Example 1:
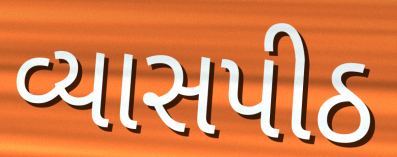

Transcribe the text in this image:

વ્યાસપીઠ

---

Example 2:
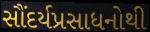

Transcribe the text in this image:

સૌંદર્યપ્રસાધનોથી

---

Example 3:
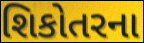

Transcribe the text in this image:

શિકોતરના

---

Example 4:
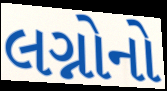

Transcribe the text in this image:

લગ્નોનો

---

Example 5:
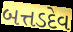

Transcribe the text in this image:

બત્તડદેવ